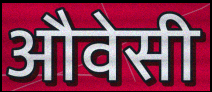
औवेसी